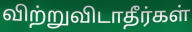
விற்றுவிடாதீர்கள்